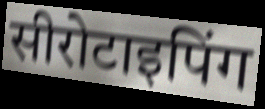
सीरोटाइपिंग